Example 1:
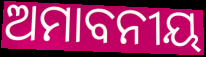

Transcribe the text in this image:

ଅମାବନୀୟ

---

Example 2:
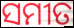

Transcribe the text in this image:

ସମୀତ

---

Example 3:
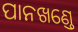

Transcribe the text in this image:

ପାନଖଣ୍ଡେ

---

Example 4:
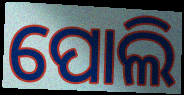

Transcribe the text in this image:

ପୋଲି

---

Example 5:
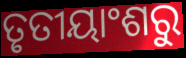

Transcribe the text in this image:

ତୃତୀୟାଂଶରୁ